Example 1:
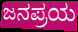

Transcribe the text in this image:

ಜನಪ್ರಯ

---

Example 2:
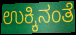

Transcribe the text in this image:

ಉಕ್ಕಿನಂತೆ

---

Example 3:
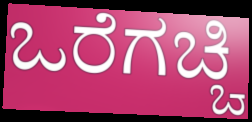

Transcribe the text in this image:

ಒರೆಗಚ್ಚಿ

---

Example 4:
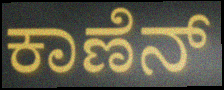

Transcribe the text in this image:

ಕಾಣೆನ್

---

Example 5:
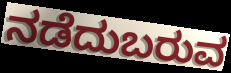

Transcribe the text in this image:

ನಡೆದುಬರುವ